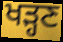
ਖੜ੍ਹਣ